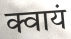
क्वायं